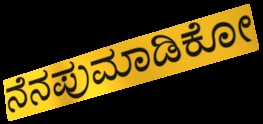
ನೆನಪುಮಾಡಿಕೋ